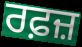
ਰਫ਼ਜ਼